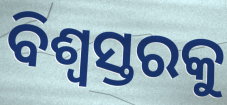
ବିଶ୍ୱସ୍ତରକୁ